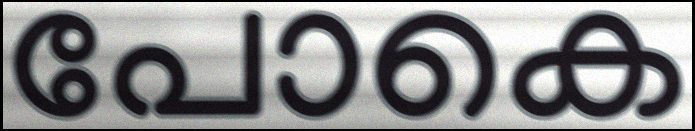
പോകെ